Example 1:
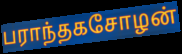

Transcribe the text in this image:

பராந்தகசோழன்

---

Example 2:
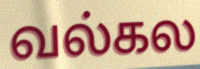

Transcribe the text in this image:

வல்கல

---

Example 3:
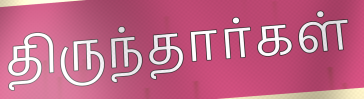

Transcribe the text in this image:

திருந்தார்கள்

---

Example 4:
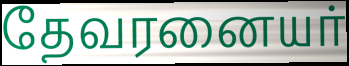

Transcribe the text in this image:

தேவரனையர்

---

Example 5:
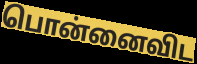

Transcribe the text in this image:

பொன்னைவிட